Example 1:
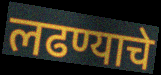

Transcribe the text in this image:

लढण्याचे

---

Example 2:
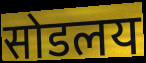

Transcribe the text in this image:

सोडलय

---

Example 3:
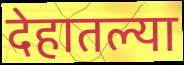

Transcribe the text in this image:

देहातल्या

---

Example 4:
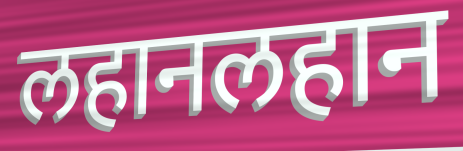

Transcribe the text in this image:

लहानलहान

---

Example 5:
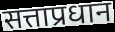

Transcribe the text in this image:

सत्ताप्रधान